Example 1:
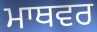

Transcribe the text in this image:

ਮਾਥਵਰ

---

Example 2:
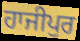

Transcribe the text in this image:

ਹਾਜੀਪੁਰ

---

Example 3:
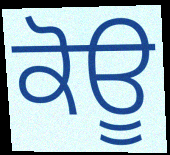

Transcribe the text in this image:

ਕੋਊ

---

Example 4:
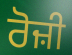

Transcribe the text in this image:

ਰੋਜ਼ੀ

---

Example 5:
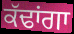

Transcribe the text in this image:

ਕੱਢਾਂਗਾ